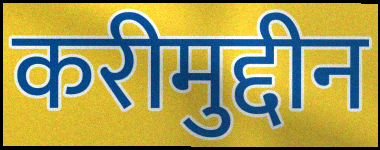
करीमुद्दीन